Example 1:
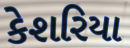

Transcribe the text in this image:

કેશરિયા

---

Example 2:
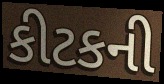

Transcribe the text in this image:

કીટકની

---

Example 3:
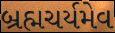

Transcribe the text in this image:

બ્રહ્મચર્યમેવ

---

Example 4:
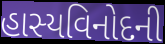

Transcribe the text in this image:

હાસ્યવિનોદની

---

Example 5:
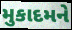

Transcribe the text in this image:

મુકાદમને